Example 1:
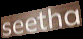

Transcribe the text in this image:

seetha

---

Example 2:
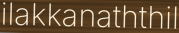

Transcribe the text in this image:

ilakkanaththil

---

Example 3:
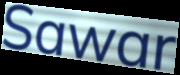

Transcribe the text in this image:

Sawar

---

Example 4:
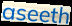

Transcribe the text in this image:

aseeth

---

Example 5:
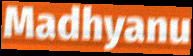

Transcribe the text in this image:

Madhyanu